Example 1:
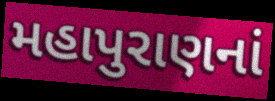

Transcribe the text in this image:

મહાપુરાણનાં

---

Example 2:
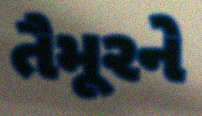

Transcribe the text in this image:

તૈમૂરને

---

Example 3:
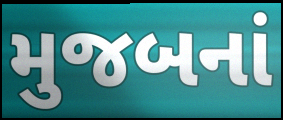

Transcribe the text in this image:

મુજબનાં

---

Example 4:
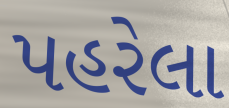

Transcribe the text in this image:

પહરેલા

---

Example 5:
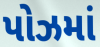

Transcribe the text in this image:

પોઝમાં